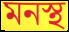
মনস্থ